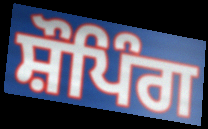
ਸ਼ੌਪਿੰਗ